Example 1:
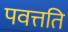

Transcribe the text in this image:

पवत्तति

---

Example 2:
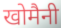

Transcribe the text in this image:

खोमैनी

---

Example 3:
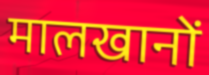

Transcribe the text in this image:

मालखानों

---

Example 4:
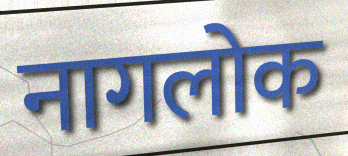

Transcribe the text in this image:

नागलोक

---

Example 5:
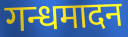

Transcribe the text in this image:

गन्धमादन